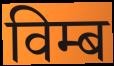
विम्ब